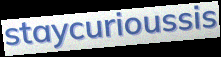
staycurioussis